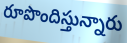
రూపొందిస్తున్నారు